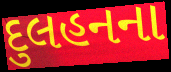
દુલહનના